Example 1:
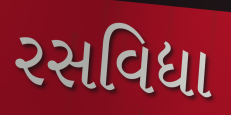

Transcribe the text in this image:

રસવિદ્યા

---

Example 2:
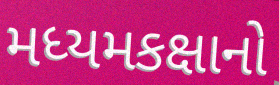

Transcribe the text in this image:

મધ્યમકક્ષાનો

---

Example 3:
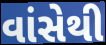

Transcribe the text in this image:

વાંસેથી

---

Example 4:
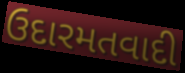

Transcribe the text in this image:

ઉદારમતવાદી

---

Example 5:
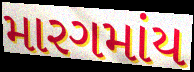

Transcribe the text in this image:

મારગમાંય